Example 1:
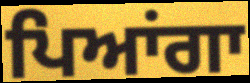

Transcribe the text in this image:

ਪਿਆਂਗਾ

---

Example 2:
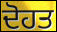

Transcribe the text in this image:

ਦੋਹਤ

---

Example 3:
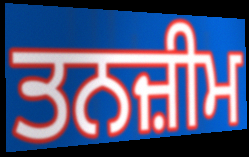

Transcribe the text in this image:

ਤਨਜ਼ੀਮ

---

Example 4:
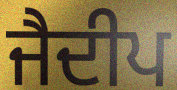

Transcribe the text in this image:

ਜੈਦੀਪ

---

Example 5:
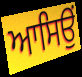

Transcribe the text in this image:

ਆਸਿਉਂ